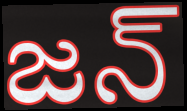
జన్